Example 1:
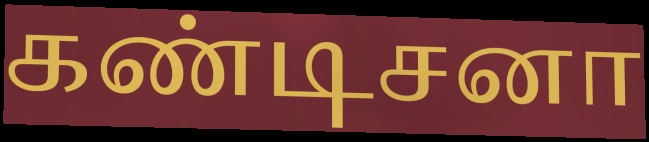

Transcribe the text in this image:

கண்டிசனா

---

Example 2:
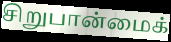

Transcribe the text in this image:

சிறுபான்மைக்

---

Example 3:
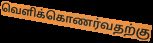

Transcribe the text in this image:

வெளிக்கொணர்வதற்கு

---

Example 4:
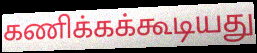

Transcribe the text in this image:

கணிக்கக்கூடியது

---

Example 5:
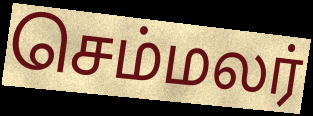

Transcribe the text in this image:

செம்மலர்